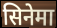
सिनेमा